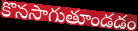
కొనసాగుతూండడం